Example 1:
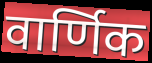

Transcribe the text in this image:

वार्णिक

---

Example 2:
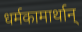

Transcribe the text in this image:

धर्मकामार्थान्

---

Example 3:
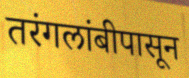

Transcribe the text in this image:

तरंगलांबीपासून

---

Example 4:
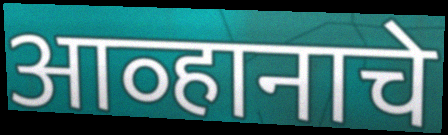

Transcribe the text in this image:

आव्हानाचे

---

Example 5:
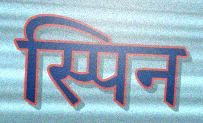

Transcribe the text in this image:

स्पिन